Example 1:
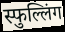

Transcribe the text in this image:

स्फुल्लिंग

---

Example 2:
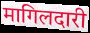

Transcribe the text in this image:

मागिलदारी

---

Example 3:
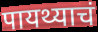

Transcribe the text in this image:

पायथ्याचं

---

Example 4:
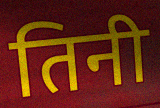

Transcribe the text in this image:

तिनी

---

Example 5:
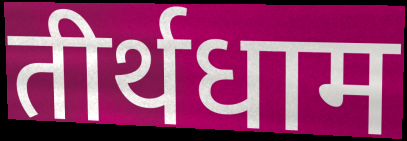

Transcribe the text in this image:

तीर्थधाम